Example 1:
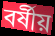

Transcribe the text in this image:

বর্ষীয়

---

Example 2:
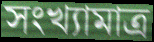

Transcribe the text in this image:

সংখ্যামাত্র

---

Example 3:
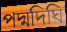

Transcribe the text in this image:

পদ্মদিঘি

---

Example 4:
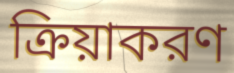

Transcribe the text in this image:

ক্রিয়াকরণ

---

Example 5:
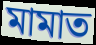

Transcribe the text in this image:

মামাত